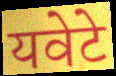
यवेटे